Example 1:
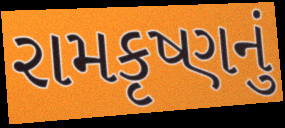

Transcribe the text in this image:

રામકૃષ્ણનું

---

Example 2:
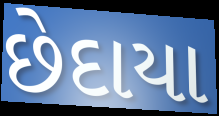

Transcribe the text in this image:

છેદાયા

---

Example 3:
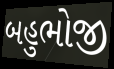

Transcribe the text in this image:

બહુભોજી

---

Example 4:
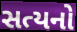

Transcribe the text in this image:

સત્યનો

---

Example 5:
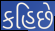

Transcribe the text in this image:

કહિછે